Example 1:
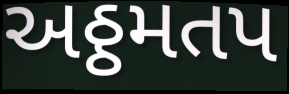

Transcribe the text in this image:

અઠ્ઠમતપ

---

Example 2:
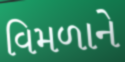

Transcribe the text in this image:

વિમળાને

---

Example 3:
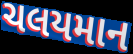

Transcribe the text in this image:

ચલયમાન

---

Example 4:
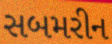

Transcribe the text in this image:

સબમરીન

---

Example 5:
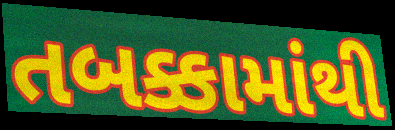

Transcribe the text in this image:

તબક્કામાંથી